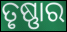
ତୃଷ୍ଣାର